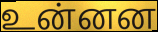
உன்னன